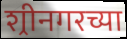
श्रीनगरच्या